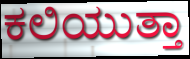
ಕಲಿಯುತ್ತಾ